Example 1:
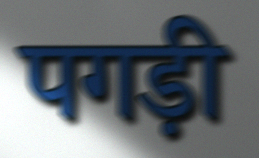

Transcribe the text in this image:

पगड़ी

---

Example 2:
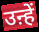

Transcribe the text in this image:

उऩ्हें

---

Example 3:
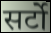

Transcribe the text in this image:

सर्टो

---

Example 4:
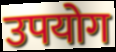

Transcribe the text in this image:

उपयोग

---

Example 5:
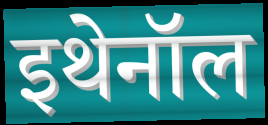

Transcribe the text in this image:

इथेनॉल